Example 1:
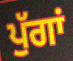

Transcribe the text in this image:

ਪੁੱਗਾਂ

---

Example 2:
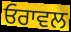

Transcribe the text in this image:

ਓਰਾਵਲ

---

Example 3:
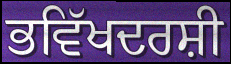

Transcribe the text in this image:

ਭਵਿੱਖਦਰਸ਼ੀ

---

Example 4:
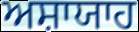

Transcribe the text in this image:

ਅਸ਼ਾਯਾਹ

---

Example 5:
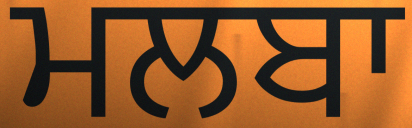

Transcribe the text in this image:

ਮਲਬਾ